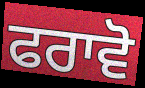
ਫਰਾਵੋ